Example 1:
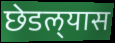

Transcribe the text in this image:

छेडल्यास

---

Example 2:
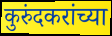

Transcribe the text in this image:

कुरुंदकरांच्या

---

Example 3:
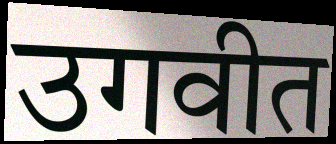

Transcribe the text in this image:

उगवीत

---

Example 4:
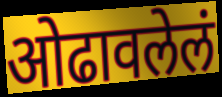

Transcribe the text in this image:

ओढावलेलं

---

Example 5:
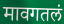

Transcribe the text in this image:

मावगतलं